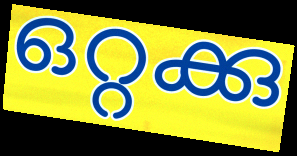
ഒറ്റക്കു